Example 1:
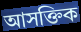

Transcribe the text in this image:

আসক্তিক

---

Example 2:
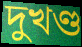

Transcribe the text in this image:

দুখণ্ড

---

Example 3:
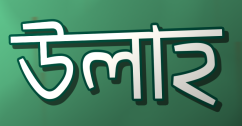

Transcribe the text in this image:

উলাহ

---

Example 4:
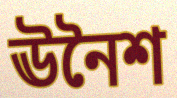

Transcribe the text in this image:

ঊনৈশ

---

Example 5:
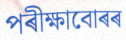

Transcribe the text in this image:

পৰীক্ষাবোৰৰ